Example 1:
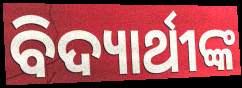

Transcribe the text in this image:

ବିଦ୍ୟାର୍ଥୀଙ୍କ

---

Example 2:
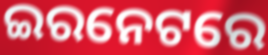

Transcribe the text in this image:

ଇରନେଟରେ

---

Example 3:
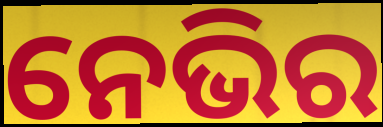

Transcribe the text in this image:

ନେଭିର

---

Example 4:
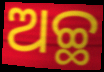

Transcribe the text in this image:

ଅଚ୍ଛ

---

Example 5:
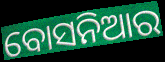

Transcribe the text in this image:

ବୋସନିଆର